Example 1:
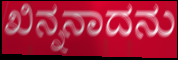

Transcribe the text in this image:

ಖಿನ್ನನಾದನು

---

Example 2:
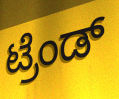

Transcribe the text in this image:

ಟ್ರೆಂಡ್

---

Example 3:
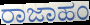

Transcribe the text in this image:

ರಾಜಾಹಂ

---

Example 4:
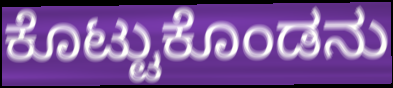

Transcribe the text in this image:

ಕೊಟ್ಟುಕೊಂಡನು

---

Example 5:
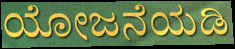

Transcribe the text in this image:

ಯೋಜನೆಯಡಿ